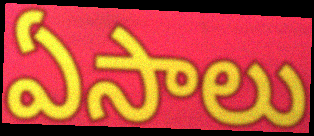
ఏసాలు